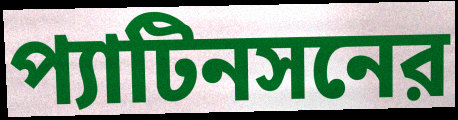
প্যাটিনসনের